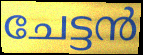
ചേട്ടൻ